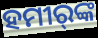
ହମୀର୍‍ଙ୍କ